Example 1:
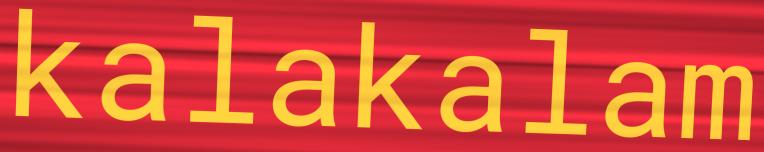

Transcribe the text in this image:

kalakalam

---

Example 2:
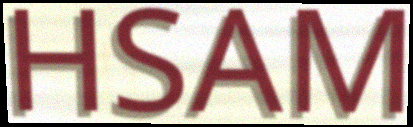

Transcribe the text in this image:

HSAM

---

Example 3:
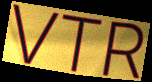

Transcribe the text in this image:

VTR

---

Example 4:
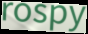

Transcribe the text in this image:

rospy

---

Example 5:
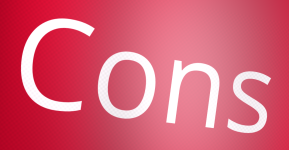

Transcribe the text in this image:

Cons